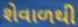
શેવાળથી